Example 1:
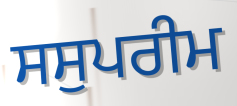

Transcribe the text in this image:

ਸਸੁਪਰੀਮ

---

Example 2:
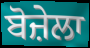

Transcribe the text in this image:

ਬੋਜ਼ੇਲਾ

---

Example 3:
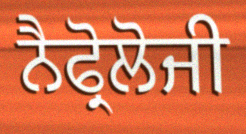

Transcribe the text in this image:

ਨੈਫ੍ਰੋਲੋਜੀ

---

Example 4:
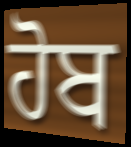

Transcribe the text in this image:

ਹੋਬ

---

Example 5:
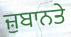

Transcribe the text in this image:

ਜ਼ੁਬਾਨਤੇ